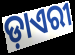
ଡ଼ାଏରୀ